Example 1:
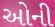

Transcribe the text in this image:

ઓની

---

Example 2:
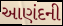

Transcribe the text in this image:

આણંદની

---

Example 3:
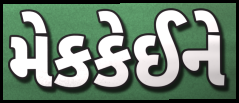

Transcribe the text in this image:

મેકકેઈને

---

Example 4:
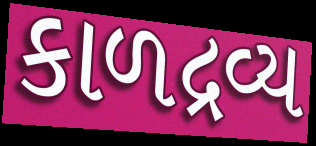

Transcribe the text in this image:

કાળદ્રવ્ય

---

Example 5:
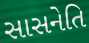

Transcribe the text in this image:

સાસનેતિ